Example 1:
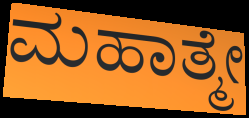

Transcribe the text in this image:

ಮಹಾತ್ಮೇ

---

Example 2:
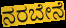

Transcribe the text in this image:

ನರಬೇನೆ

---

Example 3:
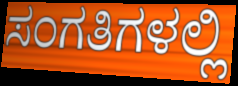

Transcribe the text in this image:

ಸಂಗತಿಗಳಲ್ಲಿ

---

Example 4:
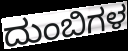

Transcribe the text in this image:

ದುಂಬಿಗಳ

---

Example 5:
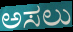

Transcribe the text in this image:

ಅಸಲು